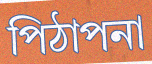
পিঠাপনা